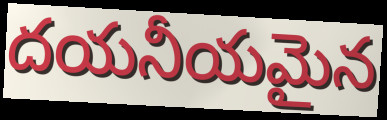
దయనీయమైన